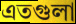
এতগুলা